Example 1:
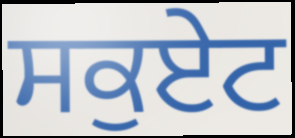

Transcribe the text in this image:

ਸਕੁਏਟ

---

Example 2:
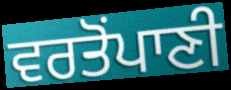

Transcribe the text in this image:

ਵਰਤੋਂਪਾਣੀ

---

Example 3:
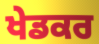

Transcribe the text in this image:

ਖੇਡਕਰ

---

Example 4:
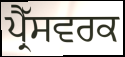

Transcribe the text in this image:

ਪ੍ਰੈੱਸਵਰਕ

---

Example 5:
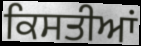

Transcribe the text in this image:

ਕਿਸਤੀਆਂ